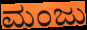
ಮಂಜು